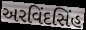
અરવિંદસિંહ